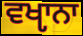
ਵਖੵਾਨਾ